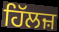
ਹਿੱਲਜ਼